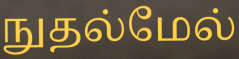
நுதல்மேல்